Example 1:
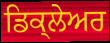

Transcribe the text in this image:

ਡਿਕ੍ਲੇਅਰ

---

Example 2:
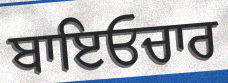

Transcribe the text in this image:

ਬਾਇਓਚਾਰ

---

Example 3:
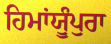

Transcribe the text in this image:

ਹਿਮਾਂਯੂੰਪੁਰਾ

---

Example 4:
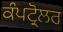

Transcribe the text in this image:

ਕੰਪਟ੍ਰੋਲਰ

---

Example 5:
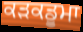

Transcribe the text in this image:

ਕੜਕਡੂਮਾ